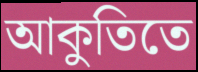
আকুতিতে